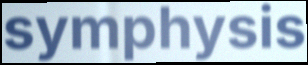
symphysis